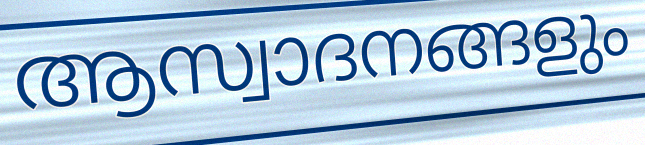
ആസ്വാദനങ്ങളും